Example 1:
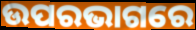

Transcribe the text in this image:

ଉପରଭାଗରେ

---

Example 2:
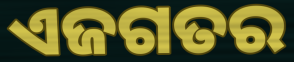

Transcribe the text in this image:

ଏଜଗତର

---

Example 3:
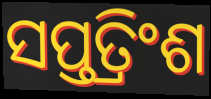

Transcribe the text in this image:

ସପ୍ତତ୍ରିଂଶ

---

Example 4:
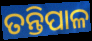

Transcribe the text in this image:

ତନ୍ତିପାଳ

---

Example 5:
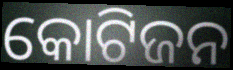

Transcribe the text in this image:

କୋଟିଜନ